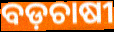
ବଡ଼ଚାଷୀ